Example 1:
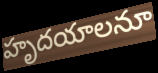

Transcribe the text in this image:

హృదయాలనూ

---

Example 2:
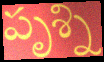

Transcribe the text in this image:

పృశ్ని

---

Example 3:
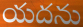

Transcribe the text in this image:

యదను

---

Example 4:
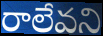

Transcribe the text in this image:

రాలేవని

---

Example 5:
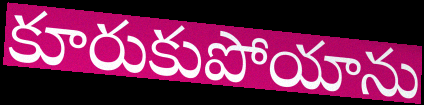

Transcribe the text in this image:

కూరుకుపోయాను